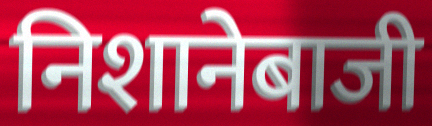
निशानेबाजी